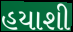
હયાશી